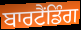
ਬਾਰਟੈਂਡਿੰਗ